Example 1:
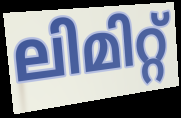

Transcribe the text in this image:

ലിമിറ്റ്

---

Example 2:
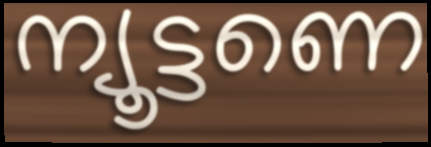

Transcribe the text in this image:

ന്യൂട്ടണെ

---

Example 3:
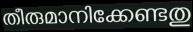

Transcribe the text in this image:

തീരുമാനിക്കേണ്ടതു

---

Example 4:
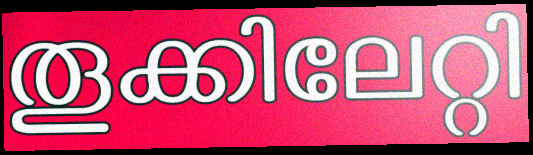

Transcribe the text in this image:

തൂക്കിലേറ്റി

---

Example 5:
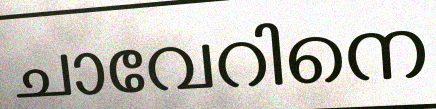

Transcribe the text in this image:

ചാവേറിനെ